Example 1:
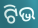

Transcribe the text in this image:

ଟିଭ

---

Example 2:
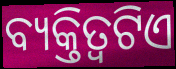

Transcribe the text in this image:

ବ୍ୟକ୍ତିତ୍ବଟିଏ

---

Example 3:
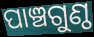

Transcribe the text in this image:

ପାଞ୍ଚଗୁଣ୍ଠ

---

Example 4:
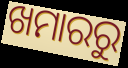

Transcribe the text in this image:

ଖମାରରୁ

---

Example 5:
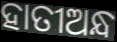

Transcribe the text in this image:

ହାତୀଅନ୍ଧ